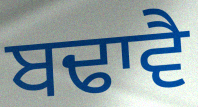
ਬਢਾਵੈ